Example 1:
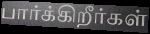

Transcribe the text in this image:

பார்க்கிறீர்கள்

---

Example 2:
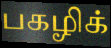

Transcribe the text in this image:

பகழிக்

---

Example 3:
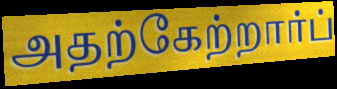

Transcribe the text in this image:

அதற்கேற்றார்ப்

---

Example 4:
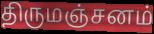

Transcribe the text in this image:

திருமஞ்சனம்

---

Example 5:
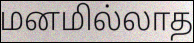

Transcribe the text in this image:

மனமில்லாத